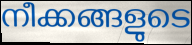
നീക്കങ്ങളുടെ